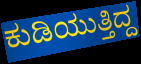
ಕುಡಿಯುತ್ತಿದ್ದ